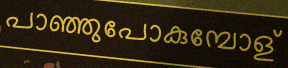
പാഞ്ഞുപോകുമ്പോള്